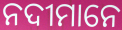
ନଦୀମାନେ